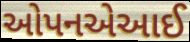
ઓપનએઆઈ